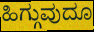
ಹಿಗ್ಗುವುದೂ